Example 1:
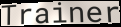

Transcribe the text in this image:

Trainer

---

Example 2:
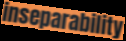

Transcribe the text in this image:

inseparability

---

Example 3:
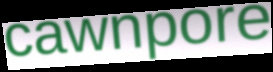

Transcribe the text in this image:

cawnpore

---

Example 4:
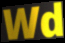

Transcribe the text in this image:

Wd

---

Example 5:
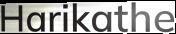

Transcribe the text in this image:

Harikathe